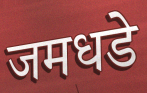
जमधडे